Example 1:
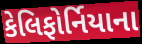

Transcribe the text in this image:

કેલિફોર્નિયાના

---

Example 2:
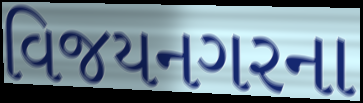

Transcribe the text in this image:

વિજયનગરના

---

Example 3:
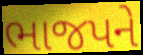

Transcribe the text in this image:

ભાજપને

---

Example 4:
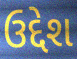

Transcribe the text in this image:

ઉદ્દેશ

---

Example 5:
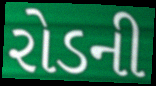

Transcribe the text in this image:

રોડની